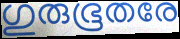
ഗുരുഭൂതരേ